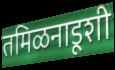
तमिळनाडूशी